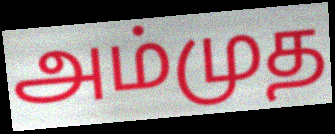
அம்முத